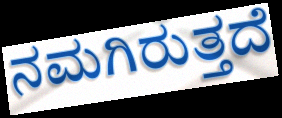
ನಮಗಿರುತ್ತದೆ